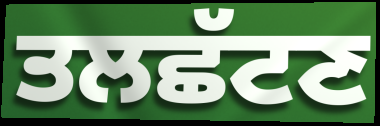
ਤਲਛੱਟਣ